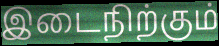
இடைநிற்கும்